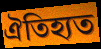
ঐতিহ্যত